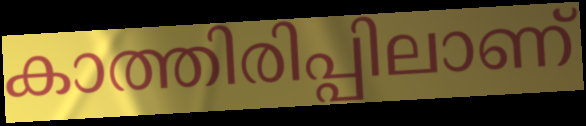
കാത്തിരിപ്പിലാണ്